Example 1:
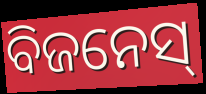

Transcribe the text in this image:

ବିଜନେସ୍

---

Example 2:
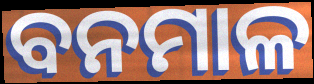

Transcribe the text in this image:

ବନମାଳ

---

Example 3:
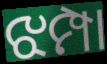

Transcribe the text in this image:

ଝମ୍ପା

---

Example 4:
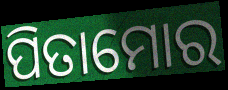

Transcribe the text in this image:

ପିତାମୋର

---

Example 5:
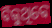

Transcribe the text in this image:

ବିକୁଥିବେ